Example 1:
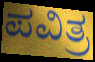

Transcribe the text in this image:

ಪವಿತ್ರ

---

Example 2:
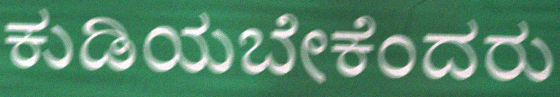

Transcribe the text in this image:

ಕುಡಿಯಬೇಕೆಂದರು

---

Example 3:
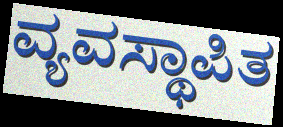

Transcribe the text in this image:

ವ್ಯವಸ್ಥಾಪಿತ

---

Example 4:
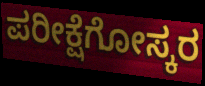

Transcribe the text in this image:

ಪರೀಕ್ಷೆಗೋಸ್ಕರ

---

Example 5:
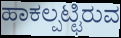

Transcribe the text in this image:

ಹಾಕಲ್ಪಟ್ಟಿರುವ